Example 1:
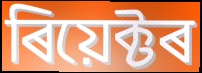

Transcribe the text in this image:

ৰিয়েক্টৰ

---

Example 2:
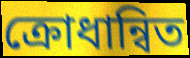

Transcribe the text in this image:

ক্ৰোধান্বিত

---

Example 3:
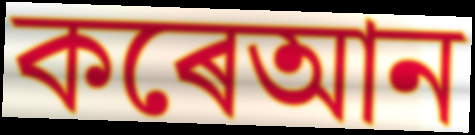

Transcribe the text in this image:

কৰেআন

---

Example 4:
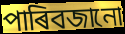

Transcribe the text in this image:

পাৰিবজানো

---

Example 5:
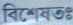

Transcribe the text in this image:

বিশেষতঃ